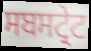
ਸਬਸਟ੍ਰੇਟ